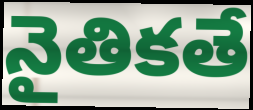
నైతికతే